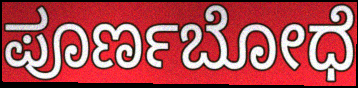
ಪೂರ್ಣಬೋಧೆ